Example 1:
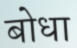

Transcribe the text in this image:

बोधा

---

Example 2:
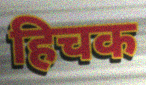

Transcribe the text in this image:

हिचक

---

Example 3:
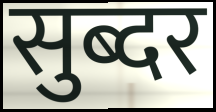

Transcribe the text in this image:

सुब्दर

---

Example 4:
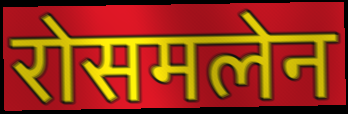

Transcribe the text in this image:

रोसमलेन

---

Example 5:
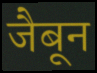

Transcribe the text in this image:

जैबून